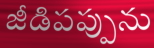
జీడిపప్పును